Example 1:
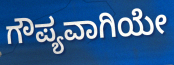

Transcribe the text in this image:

ಗೌಪ್ಯವಾಗಿಯೇ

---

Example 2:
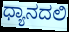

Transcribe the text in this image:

ಧ್ಯಾನದಲಿ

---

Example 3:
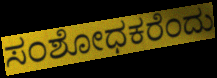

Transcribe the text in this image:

ಸಂಶೋಧಕರೆಂದು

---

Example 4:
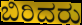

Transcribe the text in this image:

ಬಿರಿದರು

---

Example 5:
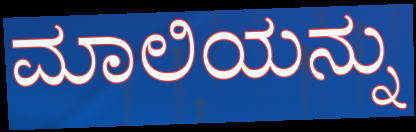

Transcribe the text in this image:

ಮಾಲಿಯನ್ನು